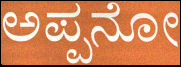
ಅಪ್ಪನೋ